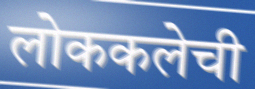
लोककलेची